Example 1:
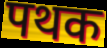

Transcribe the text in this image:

पथक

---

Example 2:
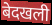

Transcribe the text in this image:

बेदखली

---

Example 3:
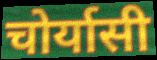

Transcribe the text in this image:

चोर्यासी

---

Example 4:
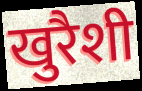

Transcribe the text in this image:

खुरैशी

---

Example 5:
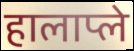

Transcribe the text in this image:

हालाप्ले